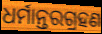
ଧର୍ମାନ୍ତରଗ୍ରହଣ